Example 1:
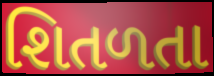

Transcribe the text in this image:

શિતળતા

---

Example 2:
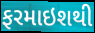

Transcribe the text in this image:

ફરમાઇશથી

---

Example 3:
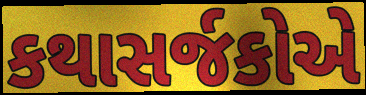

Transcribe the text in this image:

કથાસર્જકોએ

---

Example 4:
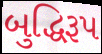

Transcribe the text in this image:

બુદ્ધિરૂપ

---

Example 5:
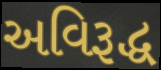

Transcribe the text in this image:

અવિરૂદ્ધ